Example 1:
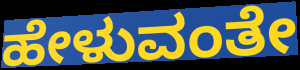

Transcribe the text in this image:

ಹೇಳುವಂತೇ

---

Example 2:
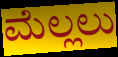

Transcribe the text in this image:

ಮೆಲ್ಲಲು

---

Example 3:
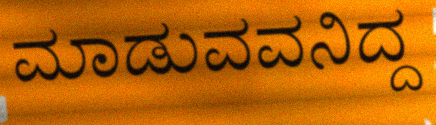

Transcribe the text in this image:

ಮಾಡುವವನಿದ್ದ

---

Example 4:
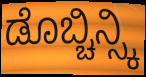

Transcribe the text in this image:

ಡೊಬ್ಚಿನ್ಸ್ಕಿ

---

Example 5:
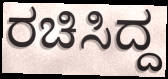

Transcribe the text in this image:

ರಚಿಸಿದ್ದ